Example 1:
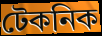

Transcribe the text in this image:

টেকনিক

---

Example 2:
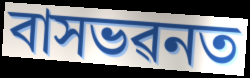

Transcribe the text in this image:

বাসভৱনত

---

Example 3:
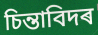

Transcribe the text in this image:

চিন্তাবিদৰ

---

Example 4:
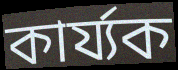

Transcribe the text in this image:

কাৰ্য্যক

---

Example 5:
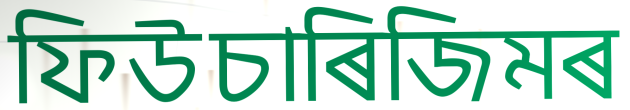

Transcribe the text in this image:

ফিউচাৰিজিমৰ